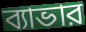
ব্যাভার